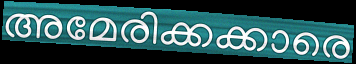
അമേരിക്കക്കാരെ